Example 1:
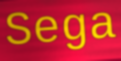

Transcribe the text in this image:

Sega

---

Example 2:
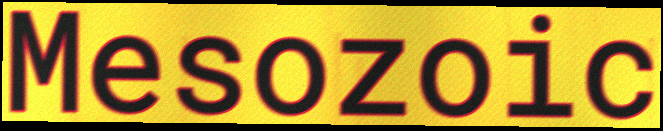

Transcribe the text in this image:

Mesozoic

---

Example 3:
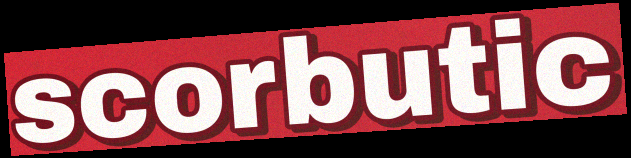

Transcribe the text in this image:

scorbutic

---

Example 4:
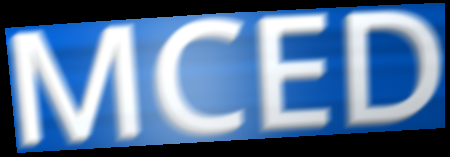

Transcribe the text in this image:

MCED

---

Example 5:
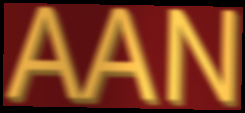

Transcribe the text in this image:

AAN